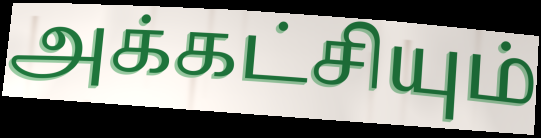
அக்கட்சியும்